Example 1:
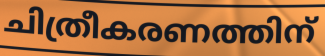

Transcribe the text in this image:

ചിത്രീകരണത്തിന്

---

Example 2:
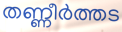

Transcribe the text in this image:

തണ്ണീർത്തട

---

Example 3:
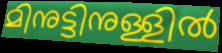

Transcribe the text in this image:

മിനുട്ടിനുള്ളിൽ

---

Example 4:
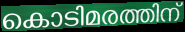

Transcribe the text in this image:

കൊടിമരത്തിന്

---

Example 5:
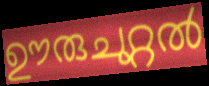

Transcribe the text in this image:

ഊരുചുറ്റൽ